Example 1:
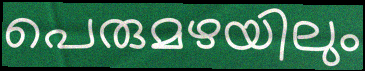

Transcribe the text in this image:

പെരുമഴയിലും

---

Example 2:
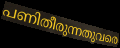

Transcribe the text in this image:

പണിതീരുന്നതുവരെ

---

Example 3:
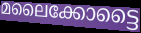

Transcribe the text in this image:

മലൈക്കോട്ടൈ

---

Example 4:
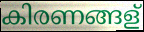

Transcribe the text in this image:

കിരണങ്ങള്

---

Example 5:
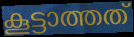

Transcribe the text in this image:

കൂട്ടാത്തത്